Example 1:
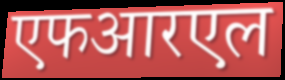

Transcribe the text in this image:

एफआरएल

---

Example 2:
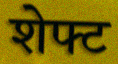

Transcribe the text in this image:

शेफ्ट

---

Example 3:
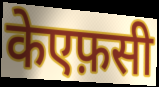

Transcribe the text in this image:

केएफ़सी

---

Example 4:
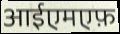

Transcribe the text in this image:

आईएमएफ़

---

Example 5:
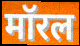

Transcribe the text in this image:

मॉरल